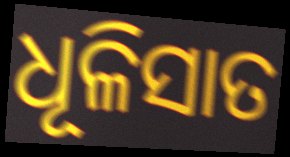
ଧୂଳିସାତ